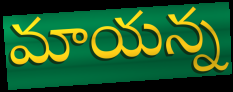
మాయన్న